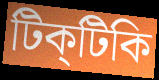
টিক্‌টিকি